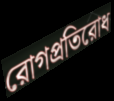
রোগপ্রতিরোধ